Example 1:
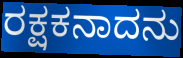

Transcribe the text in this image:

ರಕ್ಷಕನಾದನು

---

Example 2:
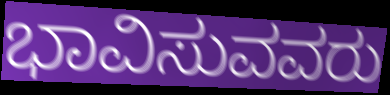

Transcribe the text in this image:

ಭಾವಿಸುವವರು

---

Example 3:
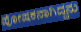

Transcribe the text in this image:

ಪೋಷಕನಾಗಿದ್ದನು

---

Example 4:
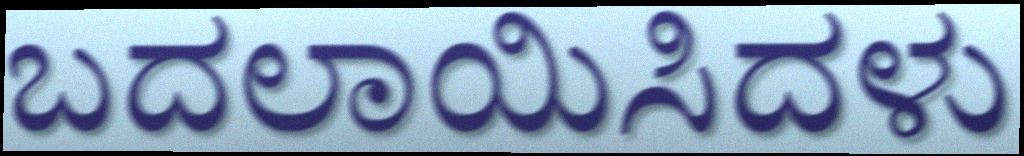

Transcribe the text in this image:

ಬದಲಾಯಿಸಿದಳು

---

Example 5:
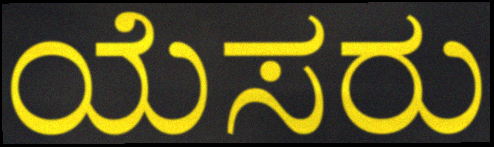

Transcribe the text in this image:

ಯೆಸರು